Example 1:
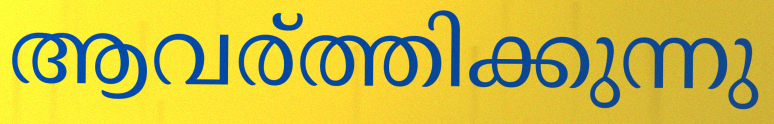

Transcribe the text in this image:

ആവര്ത്തിക്കുന്നു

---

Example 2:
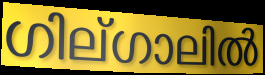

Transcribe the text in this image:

ഗില്ഗാലിൽ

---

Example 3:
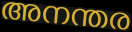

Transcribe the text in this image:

അനന്തര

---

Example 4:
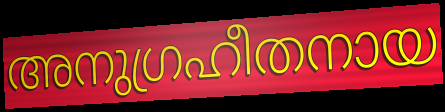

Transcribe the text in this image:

അനുഗ്രഹീതനായ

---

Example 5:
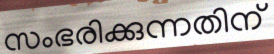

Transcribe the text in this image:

സംഭരിക്കുന്നതിന്